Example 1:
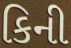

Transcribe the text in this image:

કિની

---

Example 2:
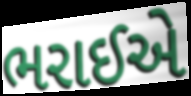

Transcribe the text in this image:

ભરાઈએ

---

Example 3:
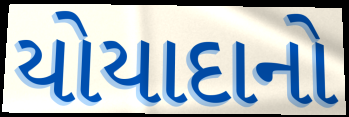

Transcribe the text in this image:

યોયાદાનો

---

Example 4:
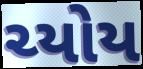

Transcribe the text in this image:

ચ્યોય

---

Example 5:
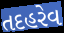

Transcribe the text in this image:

તદહરેવ